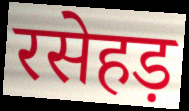
रसेहड़